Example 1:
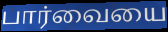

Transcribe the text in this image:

பார்வையை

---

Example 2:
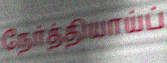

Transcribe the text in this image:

நேர்த்தியாய்ப்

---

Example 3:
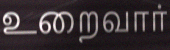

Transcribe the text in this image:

உறைவார்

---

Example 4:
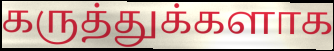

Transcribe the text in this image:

கருத்துக்களாக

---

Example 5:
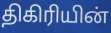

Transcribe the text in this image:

திகிரியின்